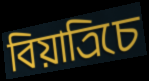
বিয়াত্রিচে